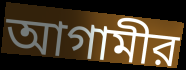
আগামীর